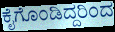
ಕೈಗೊಂಡಿದ್ದರಿಂದ